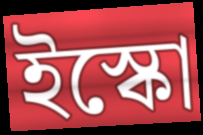
ইস্কো